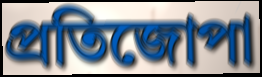
প্ৰতিজোপা